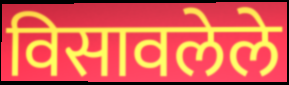
विसावलेले